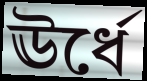
ঊর্ধে